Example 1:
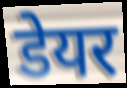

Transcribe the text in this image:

डेयर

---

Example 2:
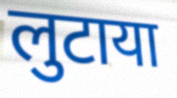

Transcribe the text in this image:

लुटाया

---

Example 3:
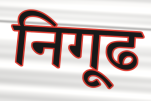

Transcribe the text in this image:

निगूढ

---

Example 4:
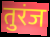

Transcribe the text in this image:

तुरंज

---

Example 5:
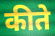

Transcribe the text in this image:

कीते